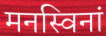
मनस्विनां